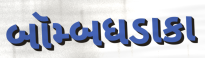
બૉમ્બધડાકા